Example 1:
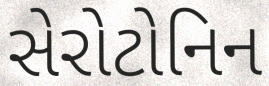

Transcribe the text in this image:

સેરોટોનિન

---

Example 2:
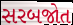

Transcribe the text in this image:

સરબજોત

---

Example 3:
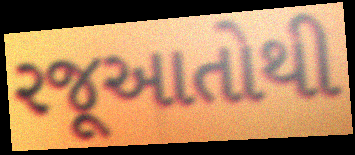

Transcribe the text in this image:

રજૂઆતોથી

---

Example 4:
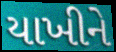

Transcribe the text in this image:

યાખીને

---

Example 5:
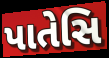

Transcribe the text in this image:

પાતેસિ